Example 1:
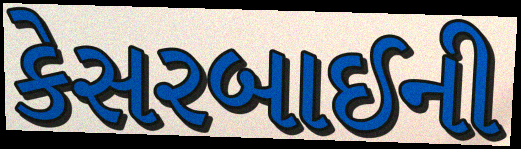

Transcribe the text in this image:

કેસરબાઈની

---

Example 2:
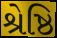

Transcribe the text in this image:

શ્રેષ્ઠિ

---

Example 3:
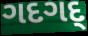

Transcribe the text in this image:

ગદગદ્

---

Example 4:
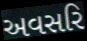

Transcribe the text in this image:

અવસરિ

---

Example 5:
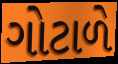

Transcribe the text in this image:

ગોટાળે